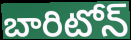
బారిటోన్